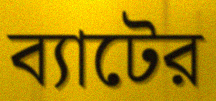
ব্যাটের